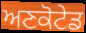
ਅਣਕੋਟੇਡ